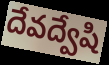
దేవద్వేషి